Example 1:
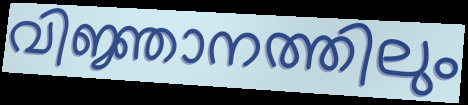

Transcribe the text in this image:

വിജ്ഞാനത്തിലും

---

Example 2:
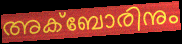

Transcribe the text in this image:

അക്ബോരിനും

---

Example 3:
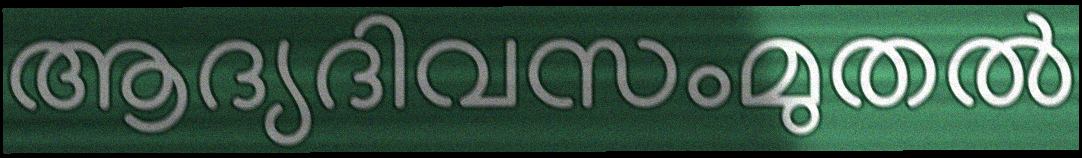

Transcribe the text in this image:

ആദ്യദിവസംമുതൽ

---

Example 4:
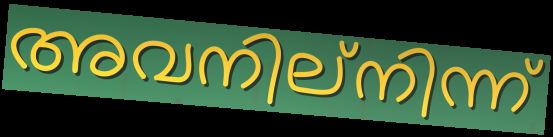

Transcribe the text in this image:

അവനില്നിന്ന്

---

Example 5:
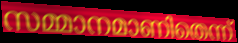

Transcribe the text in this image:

സമ്മാനമാണിതെന്ന്